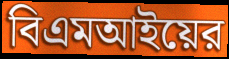
বিএমআইয়ের